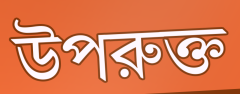
উপরুক্ত